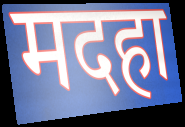
मदहा